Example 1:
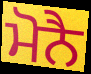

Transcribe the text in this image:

ਮੋਨੈ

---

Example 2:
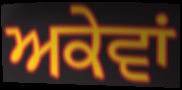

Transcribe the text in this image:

ਅਕੇਵਾਂ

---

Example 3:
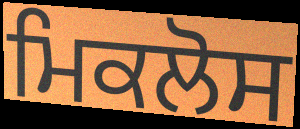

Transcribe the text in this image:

ਮਿਕਲੋਸ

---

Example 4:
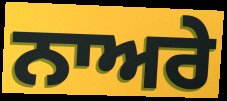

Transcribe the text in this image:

ਨਾਅਰੇ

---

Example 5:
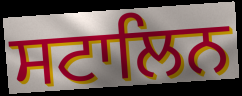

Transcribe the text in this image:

ਸਟਾਲਿਨ